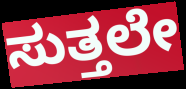
ಸುತ್ತಲೇ